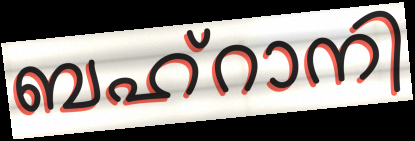
ബഹ്റാനി